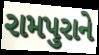
રામપુરાને